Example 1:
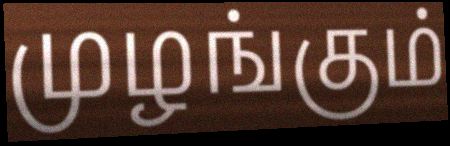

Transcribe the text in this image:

முழங்கும்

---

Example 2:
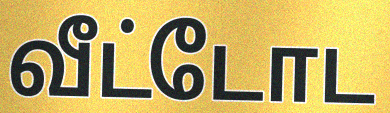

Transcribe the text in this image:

வீட்டோட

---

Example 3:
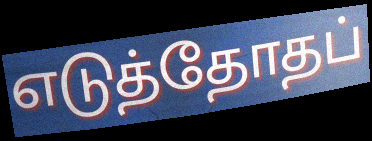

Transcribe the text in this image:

எடுத்தோதப்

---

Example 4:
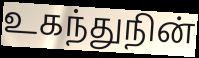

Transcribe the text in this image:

உகந்துநின்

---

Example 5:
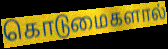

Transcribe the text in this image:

கொடுமைகளால்